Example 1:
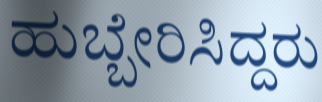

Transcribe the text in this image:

ಹುಬ್ಬೇರಿಸಿದ್ದರು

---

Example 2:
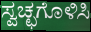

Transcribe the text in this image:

ಸ್ವಚ್ಛಗೊಳಿಸಿ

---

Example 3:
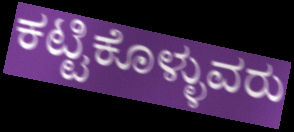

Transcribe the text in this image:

ಕಟ್ಟಿಕೊಳ್ಳುವರು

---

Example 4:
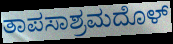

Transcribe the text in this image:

ತಾಪಸಾಶ್ರಮದೊಳ್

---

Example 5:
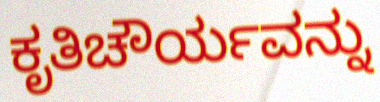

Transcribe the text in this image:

ಕೃತಿಚೌರ್ಯವನ್ನು